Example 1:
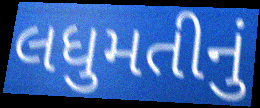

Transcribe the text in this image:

લધુમતીનું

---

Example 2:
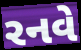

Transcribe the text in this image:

રનવે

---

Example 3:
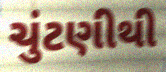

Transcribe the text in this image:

ચુંટણીથી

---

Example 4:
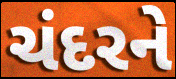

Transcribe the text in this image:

ચંદરને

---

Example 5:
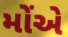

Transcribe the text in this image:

મોંએ